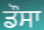
ਡੌਸਾ